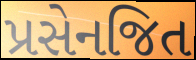
પ્રસેનજિત